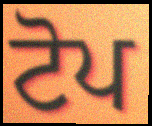
ਟੋਪ